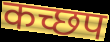
कच्छप